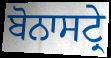
ਬੋਨਾਸਟ੍ਰੇ